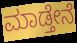
ಮಾಡ್ತೇನೆ